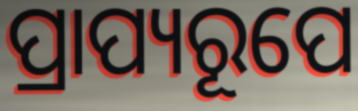
ପ୍ରାପ୍ୟରୂପେ